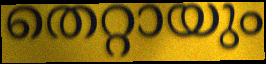
തെറ്റായും